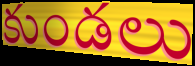
కుండలు